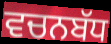
ਵਚਨਬੱਧ